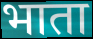
भाता